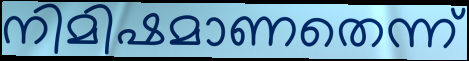
നിമിഷമാണതെന്ന്